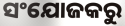
ସଂଯୋଜକରୁ